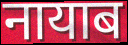
नायाब